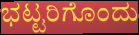
ಭಟ್ಟರಿಗೊಂದು